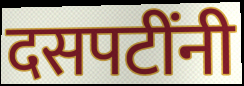
दसपटींनी